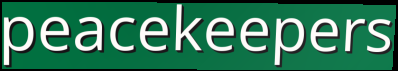
peacekeepers